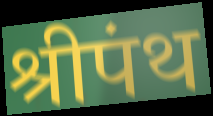
श्रीपंथ